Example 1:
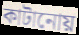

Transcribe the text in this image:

কাটানোয়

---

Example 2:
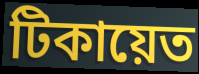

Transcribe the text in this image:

টিকায়েত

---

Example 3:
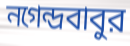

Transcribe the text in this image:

নগেন্দ্রবাবুর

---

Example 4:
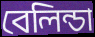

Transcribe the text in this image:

বেলিন্ডা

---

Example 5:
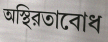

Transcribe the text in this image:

অস্থিরতাবোধ